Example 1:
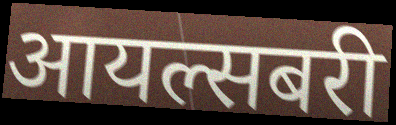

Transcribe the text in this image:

आयल्सबरी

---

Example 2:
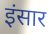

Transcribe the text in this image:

इंसार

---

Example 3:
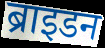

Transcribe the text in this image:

ब्राइडन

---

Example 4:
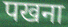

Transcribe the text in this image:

पखना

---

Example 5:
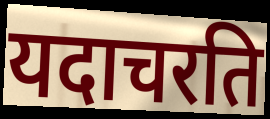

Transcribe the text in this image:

यदाचरति